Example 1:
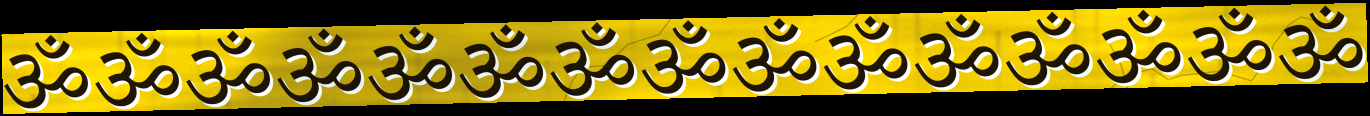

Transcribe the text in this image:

ॐॐॐॐॐॐॐॐॐॐॐॐॐॐॐ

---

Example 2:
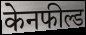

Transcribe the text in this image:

केनफील्ड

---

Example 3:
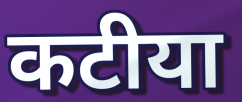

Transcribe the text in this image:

कटीया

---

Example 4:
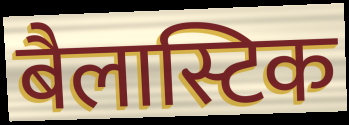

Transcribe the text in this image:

बैलास्टिक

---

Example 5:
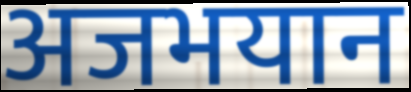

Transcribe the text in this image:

अजभयान